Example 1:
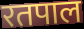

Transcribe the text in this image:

रतपाल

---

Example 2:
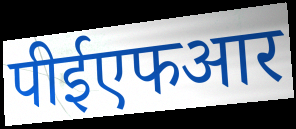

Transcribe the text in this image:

पीईएफआर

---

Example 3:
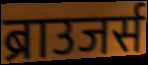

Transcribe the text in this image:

ब्राउजर्स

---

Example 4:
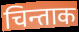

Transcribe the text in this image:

चिन्ताक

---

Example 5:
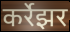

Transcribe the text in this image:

कर्रेझर